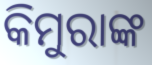
କିମୁରାଙ୍କ